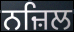
ਨਜ਼ਿਲ